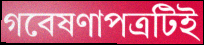
গবেষণাপত্রটিই